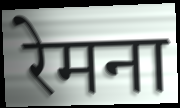
रेमना